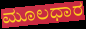
ಮೂಲಧಾರ